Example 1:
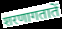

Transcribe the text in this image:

शरणागतातें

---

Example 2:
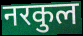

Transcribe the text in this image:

नरकुल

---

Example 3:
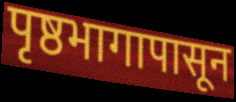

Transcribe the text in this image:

पृष्ठभागापासून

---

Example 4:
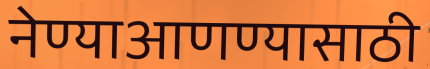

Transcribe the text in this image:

नेण्याआणण्यासाठी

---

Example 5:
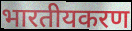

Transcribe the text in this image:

भारतीयकरण